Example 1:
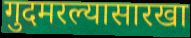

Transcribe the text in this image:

गुदमरल्यासारखा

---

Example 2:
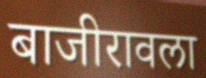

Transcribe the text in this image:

बाजीरावला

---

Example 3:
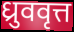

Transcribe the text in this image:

ध्रुववृत्त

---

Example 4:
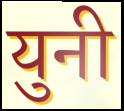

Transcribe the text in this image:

युनी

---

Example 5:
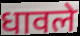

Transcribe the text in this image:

धावले